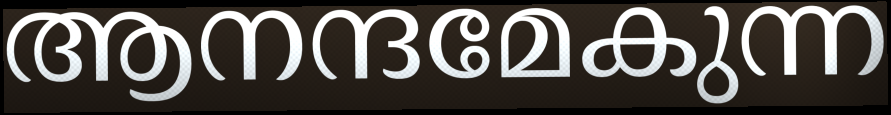
ആനന്ദമേകുന്ന